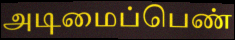
அடிமைப்பெண்